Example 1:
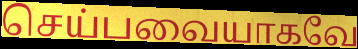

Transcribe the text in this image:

செய்பவையாகவே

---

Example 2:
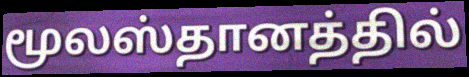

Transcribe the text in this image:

மூலஸ்தானத்தில்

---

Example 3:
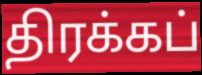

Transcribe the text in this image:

திரக்கப்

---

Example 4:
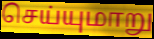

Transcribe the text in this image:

செய்யுமாறு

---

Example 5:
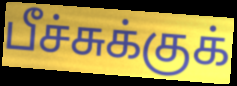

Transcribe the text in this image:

பீச்சுக்குக்